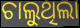
ଚାଲୁଥିଲା